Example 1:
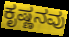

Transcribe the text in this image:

ಕೃಷ್ಣನವು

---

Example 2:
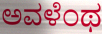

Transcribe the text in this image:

ಅವಳೆಂಥ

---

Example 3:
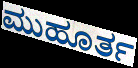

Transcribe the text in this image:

ಮುಹೂರ್ತ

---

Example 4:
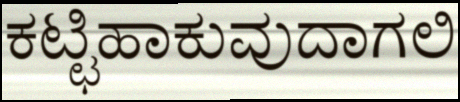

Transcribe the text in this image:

ಕಟ್ಟಿಹಾಕುವುದಾಗಲಿ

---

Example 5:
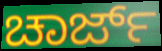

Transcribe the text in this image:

ಚಾರ್ಜ್